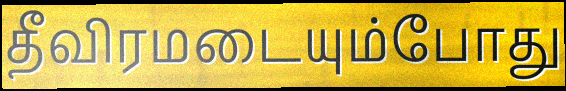
தீவிரமடையும்போது